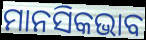
ମାନସିକଭାବ